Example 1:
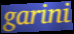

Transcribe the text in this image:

garini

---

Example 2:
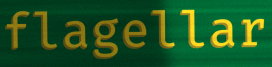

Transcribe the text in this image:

flagellar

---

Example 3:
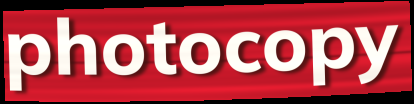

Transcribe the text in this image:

photocopy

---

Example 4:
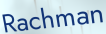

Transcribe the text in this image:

Rachman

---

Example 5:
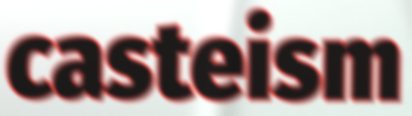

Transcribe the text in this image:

casteism